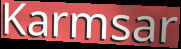
Karmsar